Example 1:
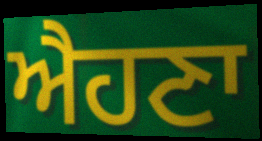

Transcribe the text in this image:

ਐਹਣਾ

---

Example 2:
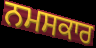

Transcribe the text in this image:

ਨਮਸਕਾਰ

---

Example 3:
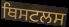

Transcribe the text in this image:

ਥਿਸਟਲਸ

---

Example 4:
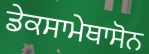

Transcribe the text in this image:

ਡੇਕਸਾਮੇਥਾਸੋਨ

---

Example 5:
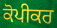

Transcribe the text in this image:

ਕੋਪੀਕਰ